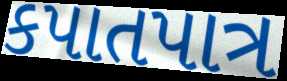
કપાતપાત્ર